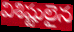
విశిష్టులైన